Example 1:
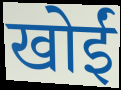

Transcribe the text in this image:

खोईं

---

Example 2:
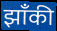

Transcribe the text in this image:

झाँकी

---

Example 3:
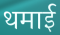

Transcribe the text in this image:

थमाई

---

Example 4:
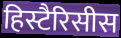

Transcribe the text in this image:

हिस्टैरिसीस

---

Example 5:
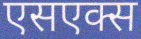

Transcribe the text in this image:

एसएक्स